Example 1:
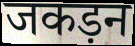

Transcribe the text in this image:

जकड़न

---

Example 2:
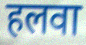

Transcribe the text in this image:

हलवा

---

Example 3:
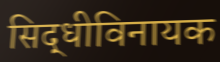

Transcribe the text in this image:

सिद्धीविनायक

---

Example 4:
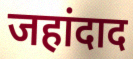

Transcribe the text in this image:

जहांदाद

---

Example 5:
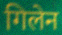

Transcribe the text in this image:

गिलेन